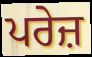
ਪਰੇਜ਼